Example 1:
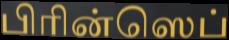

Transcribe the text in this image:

பிரின்ஸெப்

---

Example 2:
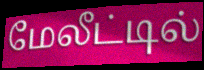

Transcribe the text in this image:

மேலீட்டில்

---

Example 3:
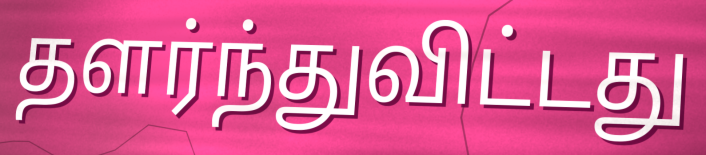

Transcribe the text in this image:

தளர்ந்துவிட்டது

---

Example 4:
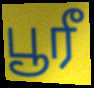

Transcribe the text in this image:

பூரீ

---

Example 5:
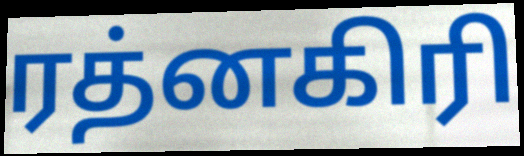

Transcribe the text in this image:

ரத்னகிரி